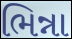
ભિન્ના